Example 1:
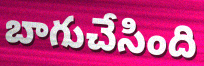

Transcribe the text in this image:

బాగుచేసింది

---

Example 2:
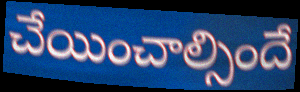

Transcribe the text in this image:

చేయించాల్సిందే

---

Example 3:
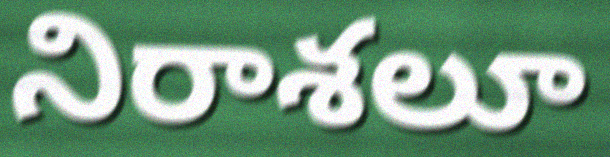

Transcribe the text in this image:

నిరాశలూ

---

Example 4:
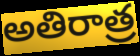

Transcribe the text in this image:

అతిరాత్ర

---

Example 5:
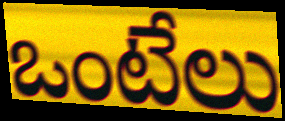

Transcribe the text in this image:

ఒంటేలు